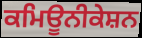
ਕਮਿਊਨੀਕੇਸ਼ਨ